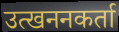
उत्खननकर्ता